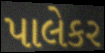
પાલેકર